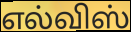
எல்விஸ்